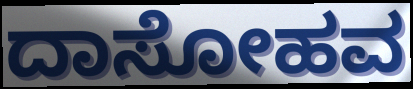
ದಾಸೋಹವ